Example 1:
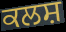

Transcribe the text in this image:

ਕਲਸ਼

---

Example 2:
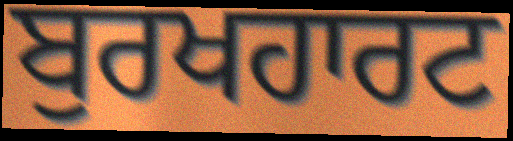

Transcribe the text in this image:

ਬੁਰਖਹਾਰਟ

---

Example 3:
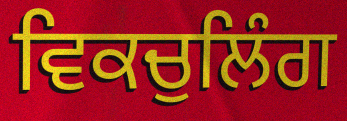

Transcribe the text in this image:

ਵਿਕਚੁਲਿੰਗ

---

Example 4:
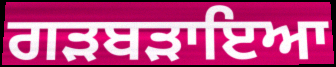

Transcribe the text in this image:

ਗੜਬੜਾਇਆ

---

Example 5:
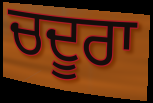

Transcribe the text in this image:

ਚਦੂਰਾ